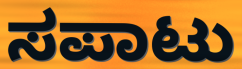
ಸಪಾಟು